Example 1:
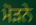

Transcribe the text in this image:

ਮੋੜਨੇ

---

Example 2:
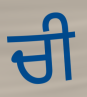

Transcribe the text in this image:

ਚੀ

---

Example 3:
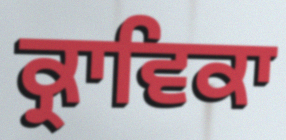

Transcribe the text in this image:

ਕ੍ਰਾਵਿਕਾ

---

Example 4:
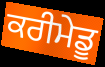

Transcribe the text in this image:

ਕਰੀਮੇਡੂ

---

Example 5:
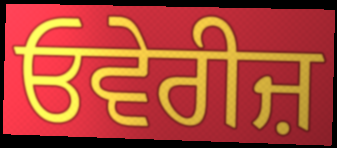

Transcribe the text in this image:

ਓਵੇਰੀਜ਼